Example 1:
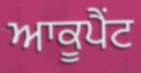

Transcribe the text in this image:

ਆਕੂਪੈਂਟ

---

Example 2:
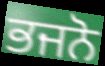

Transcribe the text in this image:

ਭਜਨੋ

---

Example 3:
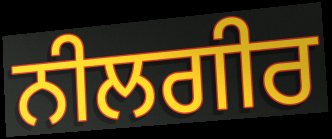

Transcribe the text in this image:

ਨੀਲਗੀਰ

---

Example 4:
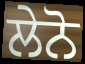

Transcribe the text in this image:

ਲੇਨੋ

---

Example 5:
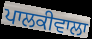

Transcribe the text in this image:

ਪਾਲਕੀਵਾਲਾ